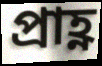
প্ৰাহ্ণ